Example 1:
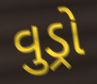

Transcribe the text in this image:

વુડ્રો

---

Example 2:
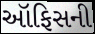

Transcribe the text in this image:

ઑફિસની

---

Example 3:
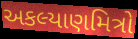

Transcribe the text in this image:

અકલ્યાણમિત્રો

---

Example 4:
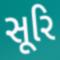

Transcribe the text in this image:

સૂરિ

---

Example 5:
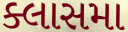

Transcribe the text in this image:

ક્લાસમા